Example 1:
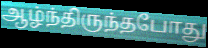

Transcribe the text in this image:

ஆழ்ந்திருந்தபோது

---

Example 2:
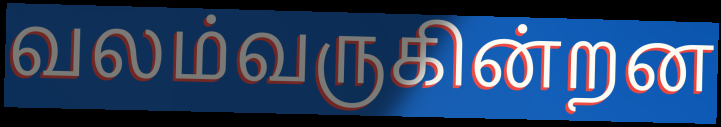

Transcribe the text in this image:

வலம்வருகின்றன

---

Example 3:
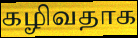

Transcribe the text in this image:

கழிவதாக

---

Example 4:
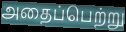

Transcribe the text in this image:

அதைப்பெற்று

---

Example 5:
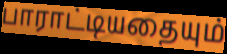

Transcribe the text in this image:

பாராட்டியதையும்